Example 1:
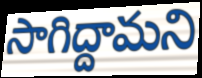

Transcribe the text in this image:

సాగిద్దామని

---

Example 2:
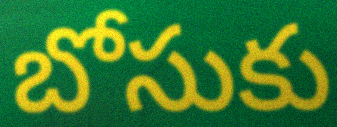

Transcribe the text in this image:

బోసుకు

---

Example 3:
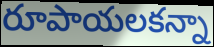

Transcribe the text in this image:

రూపాయలకన్నా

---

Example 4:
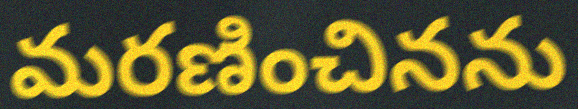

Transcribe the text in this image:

మరణించినను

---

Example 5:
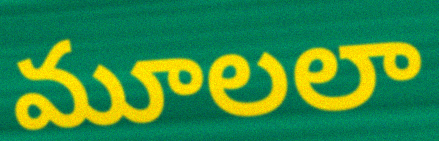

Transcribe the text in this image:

మూలలా